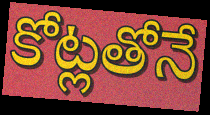
కోట్లతోనే